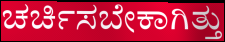
ಚರ್ಚಿಸಬೇಕಾಗಿತ್ತು